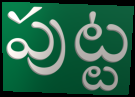
పుట్ట